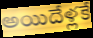
అయిదేళ్లకే